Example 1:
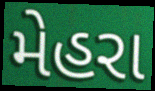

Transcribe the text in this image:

મેહરા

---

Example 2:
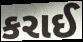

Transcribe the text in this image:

કરાઈ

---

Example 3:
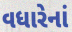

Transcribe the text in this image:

વધારેનાં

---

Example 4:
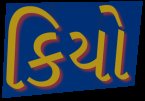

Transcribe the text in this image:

કિયો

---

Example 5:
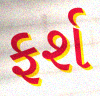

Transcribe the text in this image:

ફર્શ